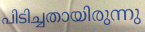
പിടിച്ചതായിരുന്നു